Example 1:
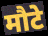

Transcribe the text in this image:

मौटे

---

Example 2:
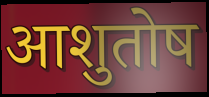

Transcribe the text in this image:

आशुतोष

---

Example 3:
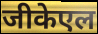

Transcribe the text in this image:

जीकेएल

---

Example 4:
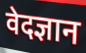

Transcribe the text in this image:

वेदज्ञान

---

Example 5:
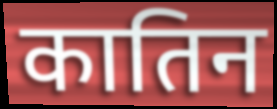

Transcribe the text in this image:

कातिन